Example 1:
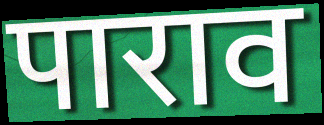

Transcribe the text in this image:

पाराव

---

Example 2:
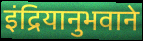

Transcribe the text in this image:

इंद्रियानुभवाने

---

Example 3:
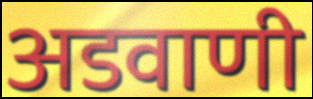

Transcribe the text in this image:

अडवाणी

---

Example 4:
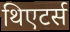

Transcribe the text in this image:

थिएटर्स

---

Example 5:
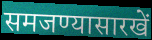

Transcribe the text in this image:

समजण्यासारखें